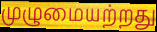
முழுமையற்றது